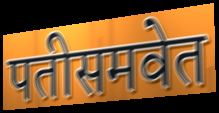
पतीसमवेत